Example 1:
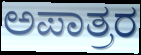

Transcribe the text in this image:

ಅಪಾತ್ರರ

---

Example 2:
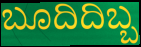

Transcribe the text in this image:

ಬೂದಿದಿಬ್ಬ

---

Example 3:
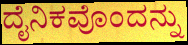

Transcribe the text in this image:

ದೈನಿಕವೊಂದನ್ನು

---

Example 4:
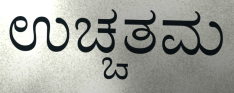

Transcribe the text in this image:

ಉಚ್ಚತಮ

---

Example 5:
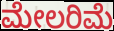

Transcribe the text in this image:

ಮೇಲರಿಮೆ